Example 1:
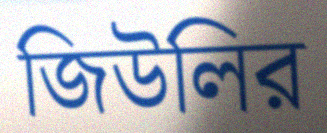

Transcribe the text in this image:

জিউলির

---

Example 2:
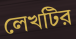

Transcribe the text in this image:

লেখটির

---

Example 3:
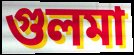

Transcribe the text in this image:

গুলমা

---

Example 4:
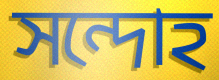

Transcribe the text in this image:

সন্দোহ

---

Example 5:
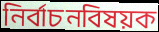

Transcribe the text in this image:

নির্বাচনবিষয়ক